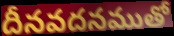
దీనవదనముతో